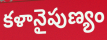
కళానైపుణ్యం